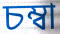
চম্বা